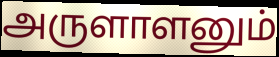
அருளாளனும்